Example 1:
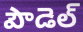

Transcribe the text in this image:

పౌడెల్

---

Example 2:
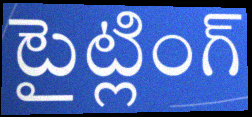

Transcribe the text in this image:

టైట్లింగ్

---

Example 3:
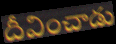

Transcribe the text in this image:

దీవించాడు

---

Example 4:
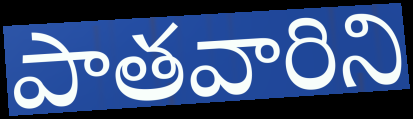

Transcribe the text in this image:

పాతవారిని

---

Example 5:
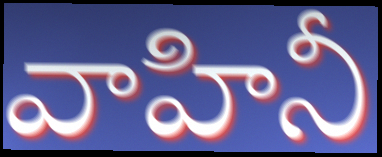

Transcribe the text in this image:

వాహినీ